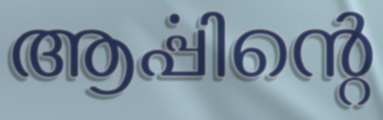
ആൎപ്പിന്റെ